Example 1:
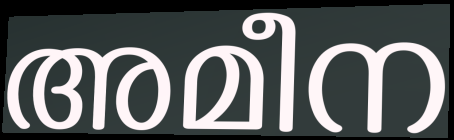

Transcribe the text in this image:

അമീന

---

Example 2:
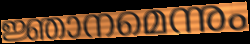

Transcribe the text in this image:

ജ്ഞാനമെന്നും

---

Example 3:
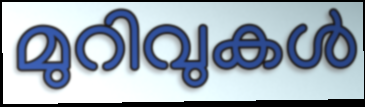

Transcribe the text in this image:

മുറിവുകൾ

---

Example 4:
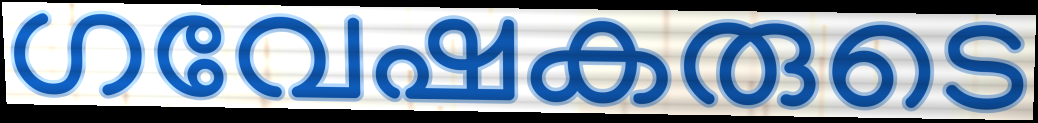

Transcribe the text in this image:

ഗവേഷകരുടെ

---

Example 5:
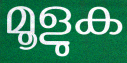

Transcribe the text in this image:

മൂളുക